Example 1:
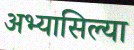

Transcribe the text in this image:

अभ्यासिल्या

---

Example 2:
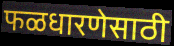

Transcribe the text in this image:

फळधारणेसाठी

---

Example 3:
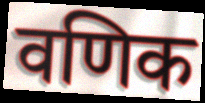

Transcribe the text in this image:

वणिक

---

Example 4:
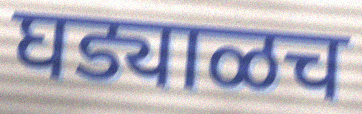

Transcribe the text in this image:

घड्याळच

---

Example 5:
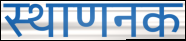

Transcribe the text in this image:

स्थाणनक